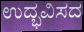
ಉದ್ಭವಿಸದ